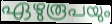
ഏഴുരൂപയും